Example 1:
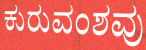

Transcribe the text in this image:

ಕುರುವಂಶವು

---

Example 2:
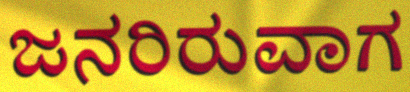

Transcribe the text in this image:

ಜನರಿರುವಾಗ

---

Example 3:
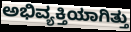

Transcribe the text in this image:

ಅಭಿವ್ಯಕ್ತಿಯಾಗಿತ್ತು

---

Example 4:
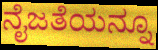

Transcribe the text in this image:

ನೈಜತೆಯನ್ನೂ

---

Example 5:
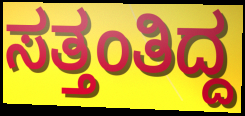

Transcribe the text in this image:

ಸತ್ತಂತಿದ್ದ